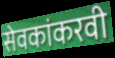
सेवकांकरवी